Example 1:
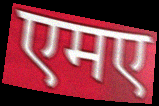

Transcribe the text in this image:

एमए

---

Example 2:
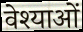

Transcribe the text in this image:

वेश्याओं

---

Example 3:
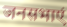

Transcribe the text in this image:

जनसभाएं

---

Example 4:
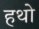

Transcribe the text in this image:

हथो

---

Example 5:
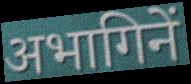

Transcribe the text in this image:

अभागिनें